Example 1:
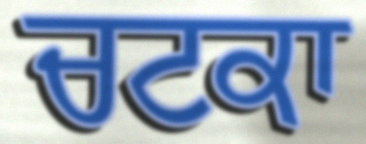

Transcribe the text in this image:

ਚਟਕਾ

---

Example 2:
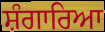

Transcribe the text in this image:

ਸ਼ੰਗਾਰਿਆ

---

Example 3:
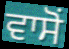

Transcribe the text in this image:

ਵਾਸੋਂ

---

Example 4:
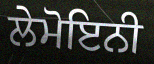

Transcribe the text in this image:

ਲੇਮੋਇਨੀ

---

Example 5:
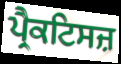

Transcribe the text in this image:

ਪ੍ਰੈਕਟਿਸਜ਼